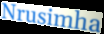
Nrusimha